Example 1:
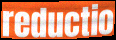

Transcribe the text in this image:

reductio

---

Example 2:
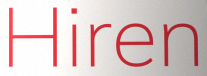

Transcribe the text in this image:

Hiren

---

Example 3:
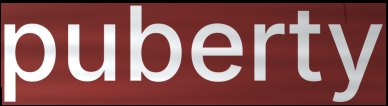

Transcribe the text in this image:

puberty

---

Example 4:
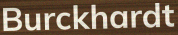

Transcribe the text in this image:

Burckhardt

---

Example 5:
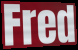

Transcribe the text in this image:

Fred